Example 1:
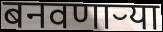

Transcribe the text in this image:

बनवणाऱ्या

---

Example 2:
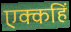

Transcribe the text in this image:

एक्कहिं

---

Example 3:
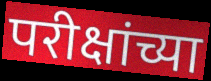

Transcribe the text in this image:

परीक्षांच्या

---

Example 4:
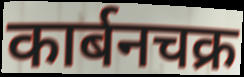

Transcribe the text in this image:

कार्बनचक्र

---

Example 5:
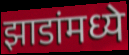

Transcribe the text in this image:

झाडांमध्ये